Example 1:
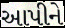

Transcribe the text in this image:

આપીને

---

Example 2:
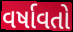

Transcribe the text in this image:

વર્ષાવતો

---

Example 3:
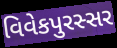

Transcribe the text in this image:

વિવેકપુરસ્સર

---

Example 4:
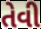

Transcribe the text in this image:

તેવી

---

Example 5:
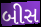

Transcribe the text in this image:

બીસ